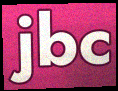
jbc